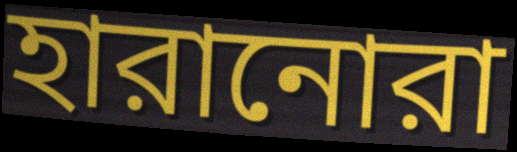
হারানোরা